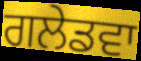
ਗਲੇਡਵਾ